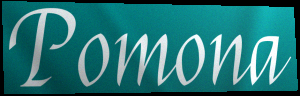
Pomona